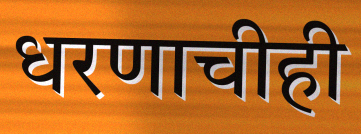
धरणाचीही